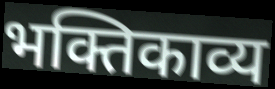
भक्तिकाव्य